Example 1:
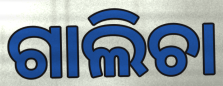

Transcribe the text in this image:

ଗାଲିଚା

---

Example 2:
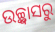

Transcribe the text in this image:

ଉଚ୍ଛ୍ୱାସରୁ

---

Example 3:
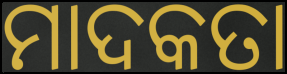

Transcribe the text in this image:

ମାଦକତା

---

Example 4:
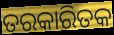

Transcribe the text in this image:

ତରକାରିତକ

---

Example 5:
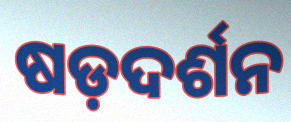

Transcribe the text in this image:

ଷଡ଼ଦର୍ଶନ